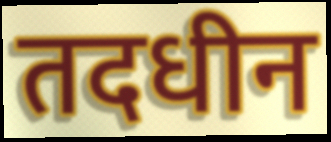
तदधीन